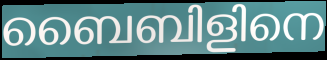
ബൈബിളിനെ